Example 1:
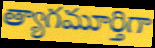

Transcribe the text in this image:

త్యాగమూర్తిగా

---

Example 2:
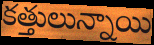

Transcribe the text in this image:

కత్తులున్నాయి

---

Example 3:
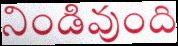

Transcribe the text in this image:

నిండివుంది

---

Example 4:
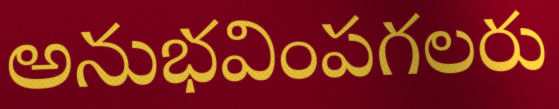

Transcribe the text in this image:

అనుభవింపగలరు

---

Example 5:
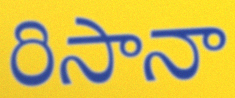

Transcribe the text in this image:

రిసానా